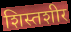
शिस्तशीर